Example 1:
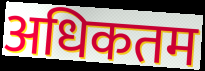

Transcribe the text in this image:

अधिकतम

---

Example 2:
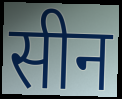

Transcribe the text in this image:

सीन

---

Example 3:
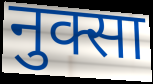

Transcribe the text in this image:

नुक्सा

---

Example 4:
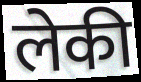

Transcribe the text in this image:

लेकी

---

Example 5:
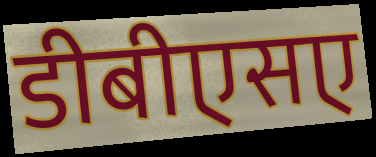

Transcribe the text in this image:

डीबीएसए